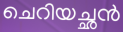
ചെറിയച്ഛൻ